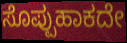
ಸೊಪ್ಪುಹಾಕದೇ